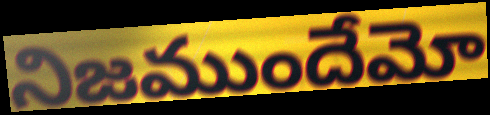
నిజముందేమో